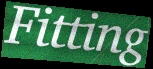
Fitting